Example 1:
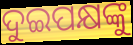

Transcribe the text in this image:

ଦୁଇପକ୍ଷଙ୍କୁ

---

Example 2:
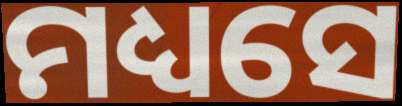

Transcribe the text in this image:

ମଧ୍ୟସେ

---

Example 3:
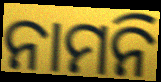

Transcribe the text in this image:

ନାମନି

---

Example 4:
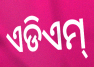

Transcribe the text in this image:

ଏଡିଏମ୍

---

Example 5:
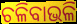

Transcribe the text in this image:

ଚଳିବାଭଳି